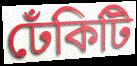
ঢেঁকিটি